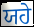
ਯਹੇ